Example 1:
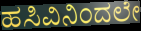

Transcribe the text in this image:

ಹಸಿವಿನಿಂದಲೇ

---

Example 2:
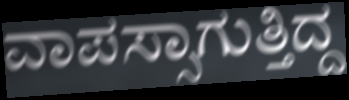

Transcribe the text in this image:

ವಾಪಸ್ಸಾಗುತ್ತಿದ್ದ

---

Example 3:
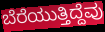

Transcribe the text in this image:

ಬೆರೆಯುತ್ತಿದ್ದೆವು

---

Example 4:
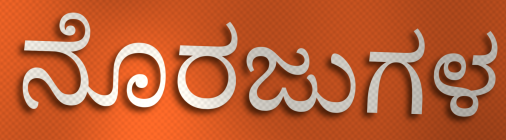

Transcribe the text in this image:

ನೊರಜುಗಳ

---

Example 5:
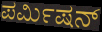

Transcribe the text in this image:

ಪರ್ಮಿಷನ್